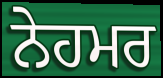
ਨੇਹਮਰ